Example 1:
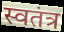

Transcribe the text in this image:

स्‍वतंत्र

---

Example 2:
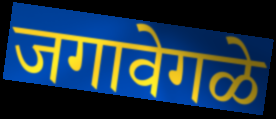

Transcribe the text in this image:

जगावेगळे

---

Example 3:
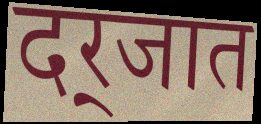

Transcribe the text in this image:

दर्जात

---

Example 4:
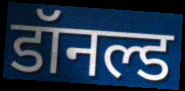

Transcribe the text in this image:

डॉनल्ड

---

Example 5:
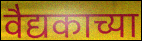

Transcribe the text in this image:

वैद्यकाच्या